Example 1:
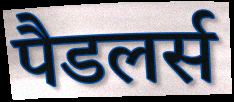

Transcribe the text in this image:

पैडलर्स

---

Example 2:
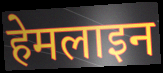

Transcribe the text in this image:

हेमलाइन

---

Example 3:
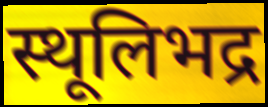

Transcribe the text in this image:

स्थूलिभद्र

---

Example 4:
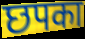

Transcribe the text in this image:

छपका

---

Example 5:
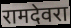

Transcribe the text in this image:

रामदेवरा